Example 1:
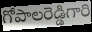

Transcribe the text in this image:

గోపాలరెడ్డిగారి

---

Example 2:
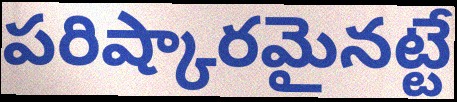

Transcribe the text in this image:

పరిష్కారమైనట్టే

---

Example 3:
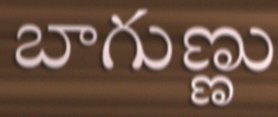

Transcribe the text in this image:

బాగుణ్ణు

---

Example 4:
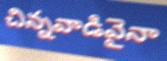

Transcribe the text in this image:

చిన్నవాడివైనా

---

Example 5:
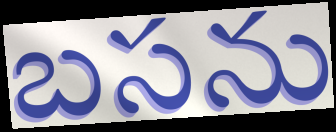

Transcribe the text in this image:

బసను